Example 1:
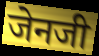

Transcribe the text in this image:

जेनजी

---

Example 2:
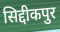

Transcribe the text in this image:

सिद्दीकपुर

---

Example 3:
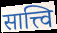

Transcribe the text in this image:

सात्त्वि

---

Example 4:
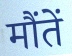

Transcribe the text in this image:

मौंतें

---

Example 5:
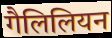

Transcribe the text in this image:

गैलिलियन